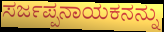
ಸರ್ಜಪ್ಪನಾಯಕನನ್ನು